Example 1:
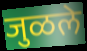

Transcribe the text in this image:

जुळले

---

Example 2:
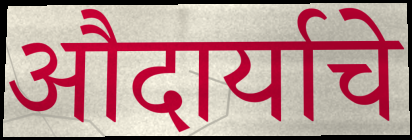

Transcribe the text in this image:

औदार्याचे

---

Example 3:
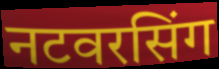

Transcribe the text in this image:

नटवरसिंग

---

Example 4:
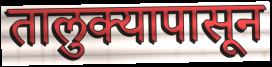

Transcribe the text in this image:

तालुक्यापासून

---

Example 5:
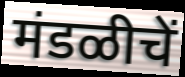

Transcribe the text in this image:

मंडळीचें